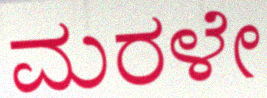
ಮರಳೇ